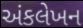
અંકલેખન